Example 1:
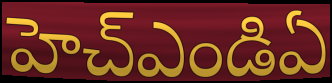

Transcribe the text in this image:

హెచ్ఎండిఏ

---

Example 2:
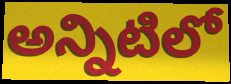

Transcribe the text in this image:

అన్నిటిలో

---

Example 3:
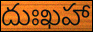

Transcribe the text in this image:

దుఃఖహా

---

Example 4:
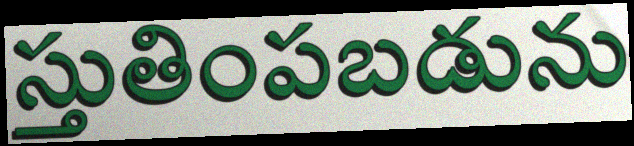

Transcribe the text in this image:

స్తుతింపబడును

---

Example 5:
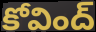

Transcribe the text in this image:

కోవింద్